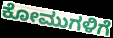
ಕೋಮುಗಳಿಗೆ